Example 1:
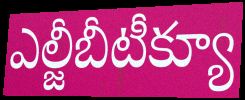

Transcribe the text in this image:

ఎల్జీబీటీక్యూ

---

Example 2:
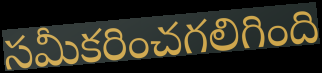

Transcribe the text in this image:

సమీకరించగలిగింది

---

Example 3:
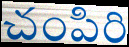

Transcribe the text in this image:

చంపిరి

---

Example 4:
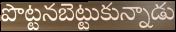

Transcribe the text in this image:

పొట్టనబెట్టుకున్నాడు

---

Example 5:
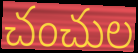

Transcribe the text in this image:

చంచుల